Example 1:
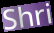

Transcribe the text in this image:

Shri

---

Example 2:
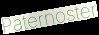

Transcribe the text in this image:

Paternoster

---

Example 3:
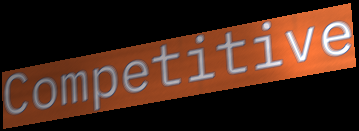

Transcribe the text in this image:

Competitive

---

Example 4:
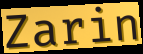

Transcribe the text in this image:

Zarin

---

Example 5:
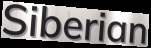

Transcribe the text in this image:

Siberian